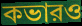
কভারও